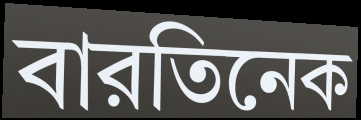
বারতিনেক